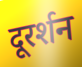
दूरर्शन